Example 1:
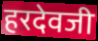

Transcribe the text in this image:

हरदेवजी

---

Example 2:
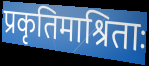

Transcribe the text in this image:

प्रकृतिमाश्रिताः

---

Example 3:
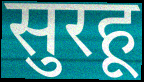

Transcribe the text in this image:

सुरहू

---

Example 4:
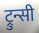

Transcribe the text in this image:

ट्रुन्सी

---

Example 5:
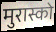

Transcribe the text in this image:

मुरास्को